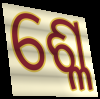
ଶ୍ଳେ